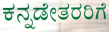
ಕನ್ನಡೇತರರಿಗೆ